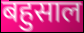
बहुसाल